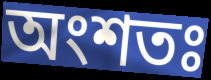
অংশতঃ